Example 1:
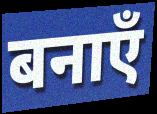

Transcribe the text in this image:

बनाएँ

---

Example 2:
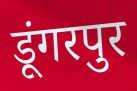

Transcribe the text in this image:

डूंगरपुर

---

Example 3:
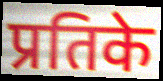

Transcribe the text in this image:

प्रतिके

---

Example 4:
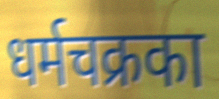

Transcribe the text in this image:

धर्मचक्रका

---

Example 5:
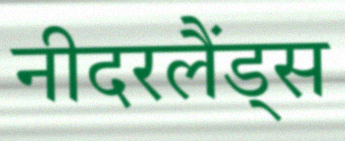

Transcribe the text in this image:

नीदरलैंड्स